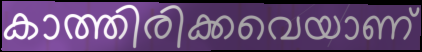
കാത്തിരിക്കവെയാണ്